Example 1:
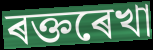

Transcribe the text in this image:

ৰক্তৰেখা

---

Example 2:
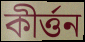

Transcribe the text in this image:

কীৰ্ত্তন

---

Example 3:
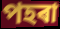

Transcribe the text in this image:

পহৰা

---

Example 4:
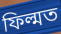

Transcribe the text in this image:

ফিল্মত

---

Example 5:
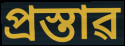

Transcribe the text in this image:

প্ৰস্তাৱ